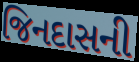
જિનદાસની